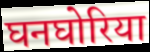
घनघोरिया